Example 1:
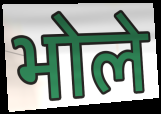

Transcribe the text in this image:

भोले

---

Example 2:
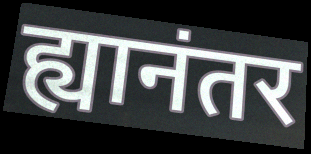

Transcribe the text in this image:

ह्यानंतर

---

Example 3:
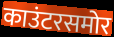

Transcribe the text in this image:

काउंटरसमोर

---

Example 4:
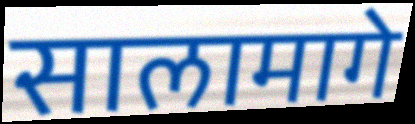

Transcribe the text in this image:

सालामागे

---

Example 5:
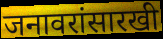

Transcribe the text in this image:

जनावरांसारखी